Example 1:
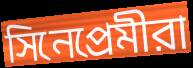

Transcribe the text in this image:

সিনেপ্রেমীরা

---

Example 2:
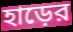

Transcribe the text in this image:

হাড়ের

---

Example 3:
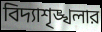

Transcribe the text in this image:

বিদ্যাশৃঙ্খলার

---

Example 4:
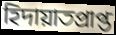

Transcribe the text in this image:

হিদায়াতপ্রাপ্ত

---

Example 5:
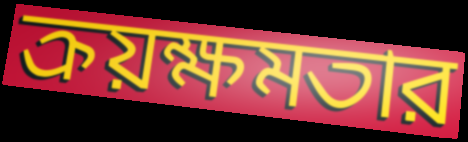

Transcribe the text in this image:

ক্রয়ক্ষমতার